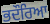
ਭਦੌਰਿਆ